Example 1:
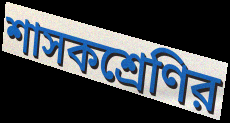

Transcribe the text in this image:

শাসকশ্রেণির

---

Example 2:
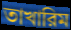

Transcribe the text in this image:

তাখারিম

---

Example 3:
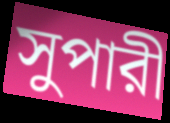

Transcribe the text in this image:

সুপারী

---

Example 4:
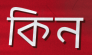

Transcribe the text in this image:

কিন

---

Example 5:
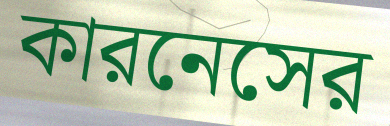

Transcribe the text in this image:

কারনেসের